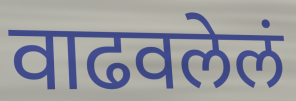
वाढवलेलं